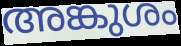
അങ്കുശം